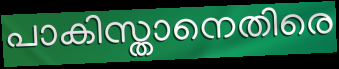
പാകിസ്താനെതിരെ